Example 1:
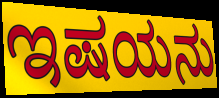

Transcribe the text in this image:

ಇಷಯನು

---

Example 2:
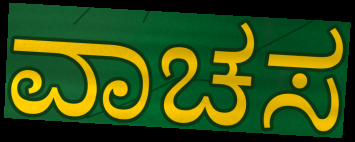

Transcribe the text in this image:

ವಾಚಸ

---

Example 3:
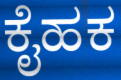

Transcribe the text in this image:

ಕೈಹಕ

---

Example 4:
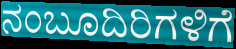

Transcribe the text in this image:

ನಂಬೂದಿರಿಗಳಿಗೆ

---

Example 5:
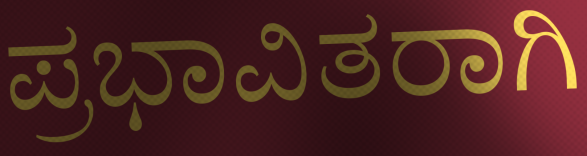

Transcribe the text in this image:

ಪ್ರಭಾವಿತರಾಗಿ